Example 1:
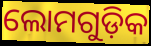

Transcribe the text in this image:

ଲୋମଗୁଡ଼ିକ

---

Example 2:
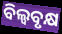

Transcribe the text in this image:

ବିଲ୍ୱବୃକ୍ଷ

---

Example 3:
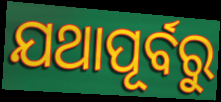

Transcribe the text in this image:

ଯଥାପୂର୍ବରୁ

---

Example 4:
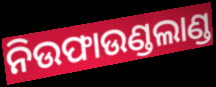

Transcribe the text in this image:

ନିଉଫାଉଣ୍ଡଲାଣ୍ଡ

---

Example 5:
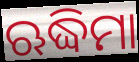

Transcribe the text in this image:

ଋଦ୍ଧିମା